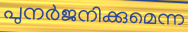
പുനർജനിക്കുമെന്ന